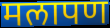
मलापण